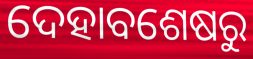
ଦେହାବଶେଷରୁ